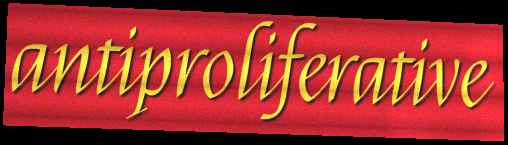
antiproliferative